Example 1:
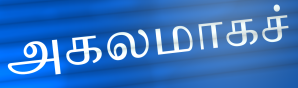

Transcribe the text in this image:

அகலமாகச்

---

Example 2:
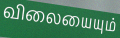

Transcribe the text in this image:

விலையையும்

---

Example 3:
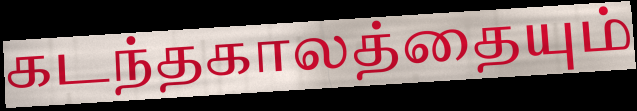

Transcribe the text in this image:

கடந்தகாலத்தையும்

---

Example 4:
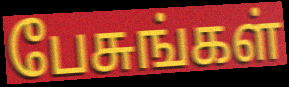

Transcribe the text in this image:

பேசுங்கள்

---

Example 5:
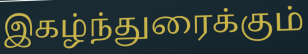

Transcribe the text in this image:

இகழ்ந்துரைக்கும்